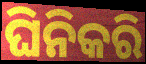
ଘିନିକରି